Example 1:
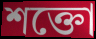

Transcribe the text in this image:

শক্তো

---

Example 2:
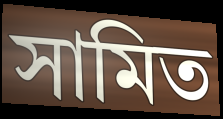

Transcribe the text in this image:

সামিত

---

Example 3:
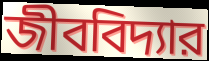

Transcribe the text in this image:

জীববিদ্যার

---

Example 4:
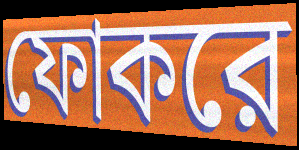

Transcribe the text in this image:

ফোকরে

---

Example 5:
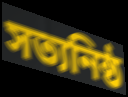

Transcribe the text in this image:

সত্যনিষ্ঠ